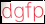
dgfp